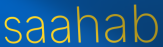
saahab